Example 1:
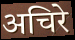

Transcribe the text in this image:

अचिरे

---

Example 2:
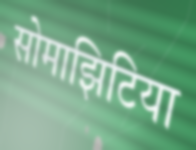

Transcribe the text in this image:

सोमाझिटिया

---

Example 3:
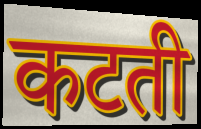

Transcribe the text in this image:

कटती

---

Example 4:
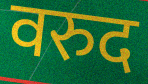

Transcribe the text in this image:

वरुद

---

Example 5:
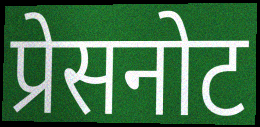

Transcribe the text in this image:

प्रेसनोट